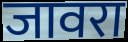
जावरा